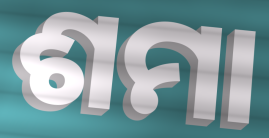
ଶମା